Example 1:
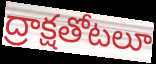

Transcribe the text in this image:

ద్రాక్షతోటలూ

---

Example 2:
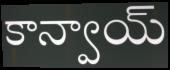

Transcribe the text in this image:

కాన్వాయ్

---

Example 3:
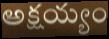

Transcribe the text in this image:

అక్షయ్యం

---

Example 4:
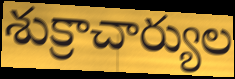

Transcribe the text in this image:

శుక్రాచార్యుల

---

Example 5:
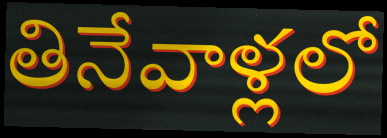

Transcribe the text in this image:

తినేవాళ్లలో